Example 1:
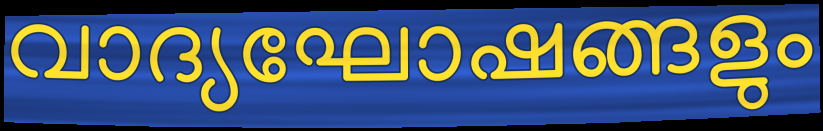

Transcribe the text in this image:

വാദ്യഘോഷങ്ങളും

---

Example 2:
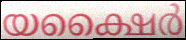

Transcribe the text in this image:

യക്ഷൈർ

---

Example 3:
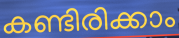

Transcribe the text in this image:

കണ്ടിരിക്കാം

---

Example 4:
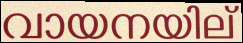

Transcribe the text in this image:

വായനയില്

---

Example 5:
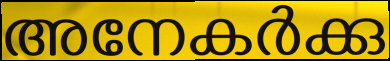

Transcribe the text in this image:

അനേകർക്കു